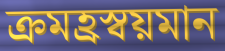
ক্রমহ্রস্বয়মান